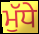
ਮੁੱਧੇ